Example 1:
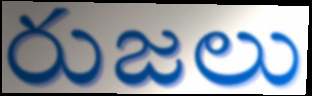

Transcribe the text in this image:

రుజలు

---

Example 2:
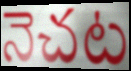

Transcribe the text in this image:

నెచట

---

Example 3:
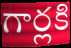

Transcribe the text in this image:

గార్లకి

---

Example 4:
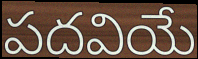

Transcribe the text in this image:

పదవియే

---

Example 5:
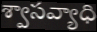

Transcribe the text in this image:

శ్వాసవ్యాధి